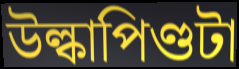
উল্কাপিণ্ডটা